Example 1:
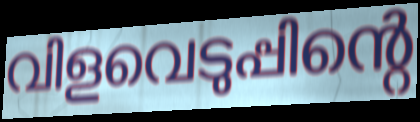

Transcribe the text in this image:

വിളവെടുപ്പിന്റെ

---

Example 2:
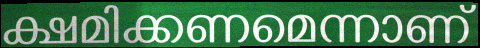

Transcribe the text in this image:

ക്ഷമിക്കണമെന്നാണ്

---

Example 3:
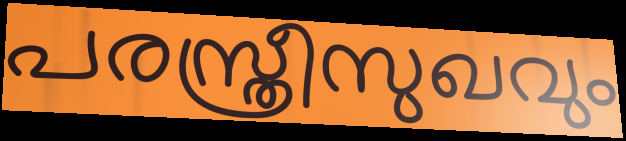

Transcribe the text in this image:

പരസ്ത്രീസുഖവും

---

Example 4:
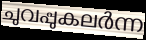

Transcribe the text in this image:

ചുവപ്പുകലർന്ന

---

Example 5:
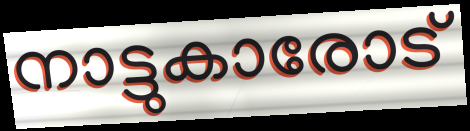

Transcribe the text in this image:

നാട്ടുകാരോട്